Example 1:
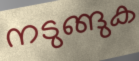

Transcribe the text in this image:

നടുങ്ങുക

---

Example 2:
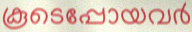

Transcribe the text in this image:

കൂടെപ്പോയവർ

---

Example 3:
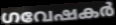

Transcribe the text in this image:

ഗവേഷകർ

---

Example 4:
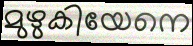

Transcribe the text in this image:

മുഴുകിയേനെ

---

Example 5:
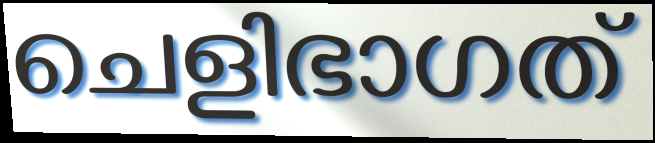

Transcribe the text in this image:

ചെളിഭാഗത്